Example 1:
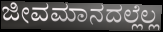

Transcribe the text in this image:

ಜೀವಮಾನದಲ್ಲೆಲ್ಲ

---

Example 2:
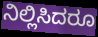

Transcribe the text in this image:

ನಿಲ್ಲಿಸಿದರೂ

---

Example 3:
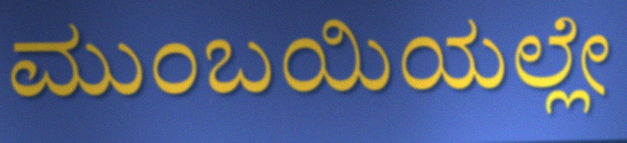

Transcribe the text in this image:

ಮುಂಬಯಿಯಲ್ಲೇ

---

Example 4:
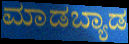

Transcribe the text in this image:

ಮಾಡಬ್ಯಾಡ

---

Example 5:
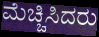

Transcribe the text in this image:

ಮೆಚ್ಚಿಸಿದರು